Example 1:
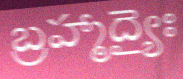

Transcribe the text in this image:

బ్రహ్మాద్యైః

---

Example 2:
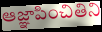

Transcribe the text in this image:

ఆజ్ఞాపించితిని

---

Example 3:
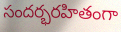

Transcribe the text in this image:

సందర్భరహితంగా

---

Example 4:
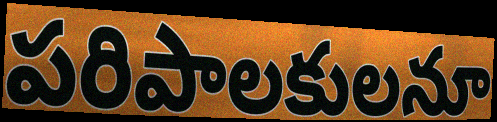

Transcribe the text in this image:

పరిపాలకులనూ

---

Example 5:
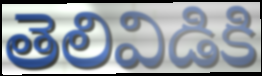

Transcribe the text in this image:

తెలివిడికి